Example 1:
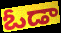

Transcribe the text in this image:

ఓడా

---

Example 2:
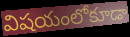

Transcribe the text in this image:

విషయంలోకూడా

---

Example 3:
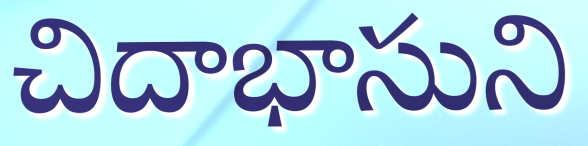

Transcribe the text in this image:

చిదాభాసుని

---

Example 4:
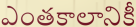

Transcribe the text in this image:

ఎంతకాలానికీ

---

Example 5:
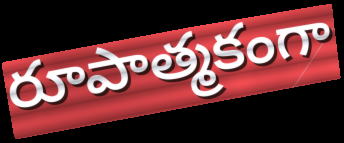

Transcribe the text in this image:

రూపాత్మకంగా